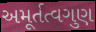
અમૂર્તત્વગુણ